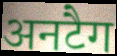
अनटैग